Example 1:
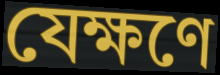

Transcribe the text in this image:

যেক্ষণে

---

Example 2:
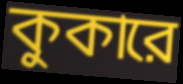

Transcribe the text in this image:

কুকারে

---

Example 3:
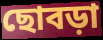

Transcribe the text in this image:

ছোবড়া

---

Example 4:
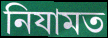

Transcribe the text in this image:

নিযামত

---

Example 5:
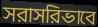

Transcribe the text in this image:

সরাসরিভাবে